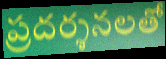
ప్రదర్శనలతో